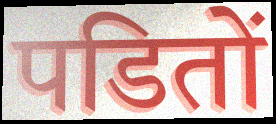
पडितों